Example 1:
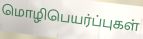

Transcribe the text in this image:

மொழிபெயர்ப்புகள்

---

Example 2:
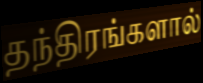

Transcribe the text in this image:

தந்திரங்களால்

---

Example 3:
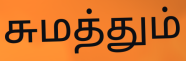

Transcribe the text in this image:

சுமத்தும்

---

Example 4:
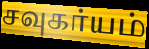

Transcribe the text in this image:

சவுகர்யம்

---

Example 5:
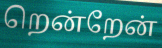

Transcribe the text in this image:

றென்றேன்